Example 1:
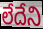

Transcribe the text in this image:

లేదేని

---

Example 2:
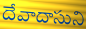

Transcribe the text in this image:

దేవాదాసుని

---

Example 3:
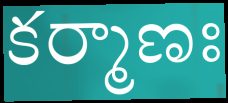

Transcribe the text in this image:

కర్మాణః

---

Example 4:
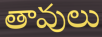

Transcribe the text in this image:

తావులు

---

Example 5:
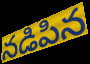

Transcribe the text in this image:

నడిపిన